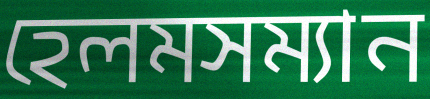
হেলমসম্যান